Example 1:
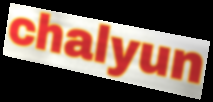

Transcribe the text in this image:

chalyun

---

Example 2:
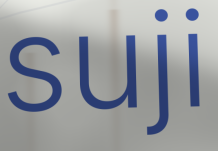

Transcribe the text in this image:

suji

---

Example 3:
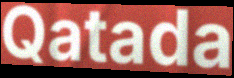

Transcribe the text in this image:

Qatada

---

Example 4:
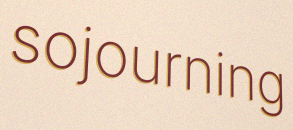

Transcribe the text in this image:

sojourning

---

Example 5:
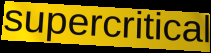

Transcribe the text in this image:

supercritical